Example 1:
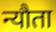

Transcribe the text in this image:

न्यौता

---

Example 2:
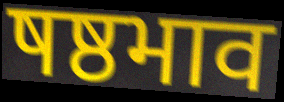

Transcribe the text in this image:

षष्ठभाव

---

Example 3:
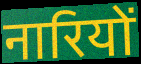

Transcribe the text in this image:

नारियों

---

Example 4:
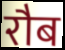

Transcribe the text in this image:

रौब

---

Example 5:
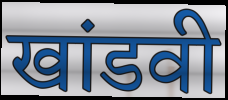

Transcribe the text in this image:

खांडवी